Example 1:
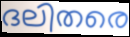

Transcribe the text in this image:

ദലിതരെ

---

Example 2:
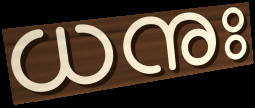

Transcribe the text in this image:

ധനുഃ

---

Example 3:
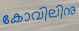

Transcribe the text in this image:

കോവിലിനു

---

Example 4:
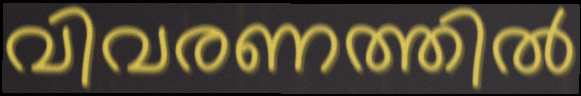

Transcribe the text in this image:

വിവരണത്തിൽ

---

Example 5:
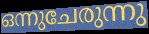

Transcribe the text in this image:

ഒന്നുചേരുന്നു